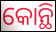
କୋନ୍ଥି